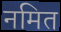
नमित